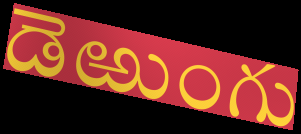
డెఱుంగు